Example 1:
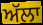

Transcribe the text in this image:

ਅੱਲਾ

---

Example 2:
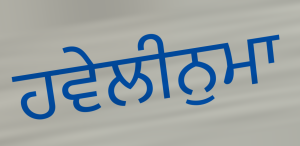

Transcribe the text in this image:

ਹਵੇਲੀਨੁਮਾ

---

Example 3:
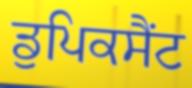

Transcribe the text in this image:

ਡੁਪਿਕਸੈਂਟ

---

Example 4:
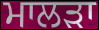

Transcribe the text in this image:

ਮਾਲੜਾ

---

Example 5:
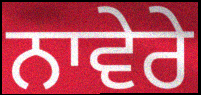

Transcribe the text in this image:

ਨਾਵੇਰੇ